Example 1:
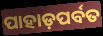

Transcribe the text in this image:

ପାହାଡ଼ପର୍ବତ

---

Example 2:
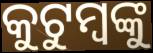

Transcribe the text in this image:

କୁଟୁମ୍ବଙ୍କୁ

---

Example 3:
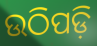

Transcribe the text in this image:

ଉଠିପଡ଼ି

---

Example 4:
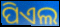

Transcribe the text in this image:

ପିଏଲ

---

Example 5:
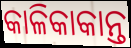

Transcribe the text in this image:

କାଳିକାକାନ୍ତ